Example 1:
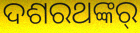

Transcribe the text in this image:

ଦଶରଥଙ୍କର୍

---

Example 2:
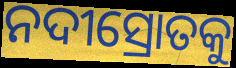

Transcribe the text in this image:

ନଦୀସ୍ରୋତକୁ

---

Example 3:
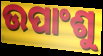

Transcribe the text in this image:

ଉପାଂଶୁ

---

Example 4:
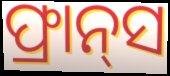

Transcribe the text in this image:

ଫ୍ରାନ୍‍ସ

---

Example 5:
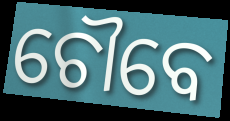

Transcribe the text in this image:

ଚୌବେ